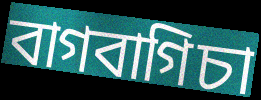
বাগবাগিচা